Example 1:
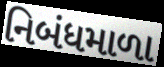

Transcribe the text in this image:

નિબંધમાળા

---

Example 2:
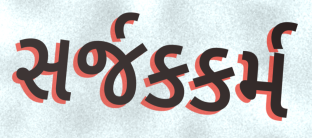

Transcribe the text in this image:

સર્જકકર્મ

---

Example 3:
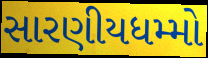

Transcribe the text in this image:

સારણીયધમ્મો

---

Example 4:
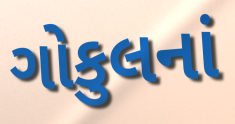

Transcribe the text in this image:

ગોકુલનાં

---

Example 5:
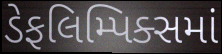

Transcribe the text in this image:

ડેફલિમ્પિક્સમાં